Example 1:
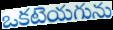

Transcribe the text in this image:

ఒకటెయగును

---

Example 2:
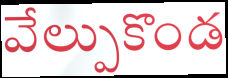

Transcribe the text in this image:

వేల్పుకొండ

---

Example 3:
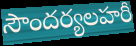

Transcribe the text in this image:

సౌందర్యలహరీ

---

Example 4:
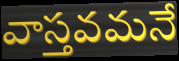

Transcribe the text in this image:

వాస్తవమనే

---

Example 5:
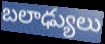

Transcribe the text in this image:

బలాఢ్యులు